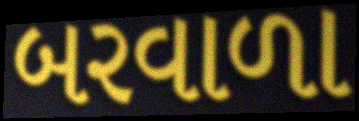
બરવાળા